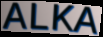
ALKA